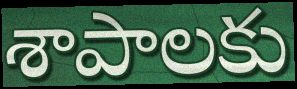
శాపాలకు